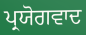
ਪ੍ਰਯੋਗਵਾਦ